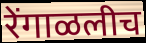
रेंगाळलीच